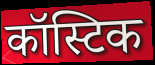
कॉस्टिक